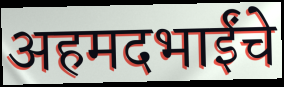
अहमदभाईंचे